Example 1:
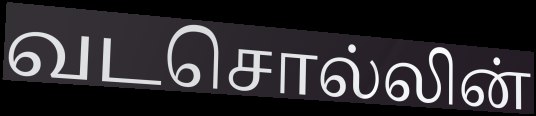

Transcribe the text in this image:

வடசொல்லின்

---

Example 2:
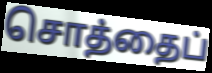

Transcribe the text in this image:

சொத்தைப்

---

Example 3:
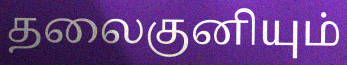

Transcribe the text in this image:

தலைகுனியும்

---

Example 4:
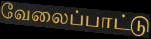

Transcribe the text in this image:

வேலைப்பாட்டு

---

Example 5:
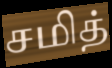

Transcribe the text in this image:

சமித்